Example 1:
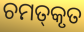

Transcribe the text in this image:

ଚମତ୍‍କୃତ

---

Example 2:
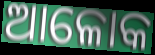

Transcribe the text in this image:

ଆଳୋକ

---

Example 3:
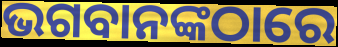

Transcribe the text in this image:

ଭଗବାନଙ୍କଠାରେ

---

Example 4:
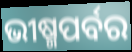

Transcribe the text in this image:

ଭୀଷ୍ମପର୍ବର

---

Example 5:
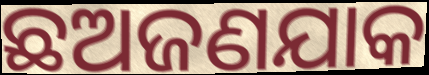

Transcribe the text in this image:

ଛଅଜଣଯାକ